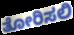
ತೋರಿಸಲಿ